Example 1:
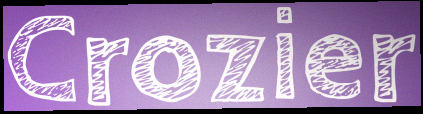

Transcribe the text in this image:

Crozier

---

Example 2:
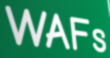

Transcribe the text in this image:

WAFs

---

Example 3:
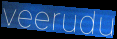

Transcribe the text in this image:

veerudu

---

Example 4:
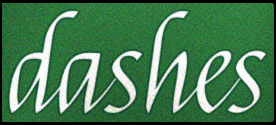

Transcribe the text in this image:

dashes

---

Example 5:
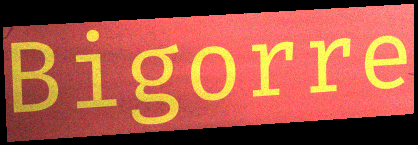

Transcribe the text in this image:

Bigorre